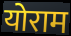
योराम